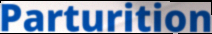
Parturition